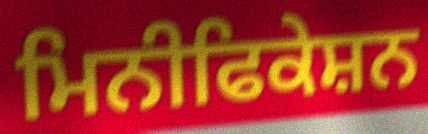
ਮਿਨੀਫਿਕੇਸ਼ਨ